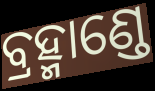
ବ୍ରହ୍ମାଣ୍ଡେ